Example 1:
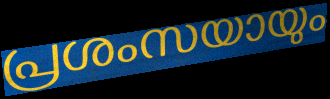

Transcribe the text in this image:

പ്രശംസയായും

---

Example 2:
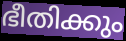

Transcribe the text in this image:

ഭീതിക്കും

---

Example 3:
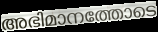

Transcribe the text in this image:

അഭിമാനത്തോടെ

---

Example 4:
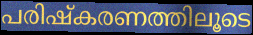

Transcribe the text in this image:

പരിഷ്കരണത്തിലൂടെ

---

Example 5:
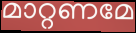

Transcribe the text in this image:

മാറ്റണമേ